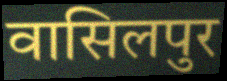
वासिलपुर